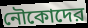
নৌকোদের